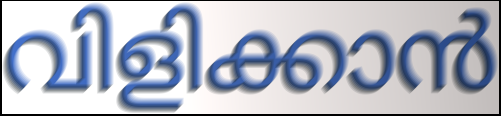
വിളിക്കാൻ